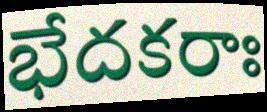
భేదకరాః